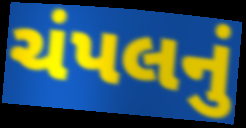
ચંપલનું